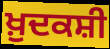
ਖ਼ੁਦਕਸ਼ੀ